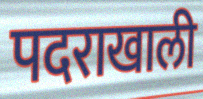
पदराखाली